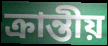
ক্ৰান্তীয়